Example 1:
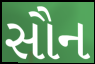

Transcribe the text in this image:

સૌન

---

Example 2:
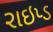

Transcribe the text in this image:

રાઇપ્ડ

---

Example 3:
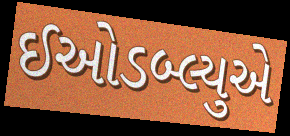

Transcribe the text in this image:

ઈઓડબ્લ્યુએ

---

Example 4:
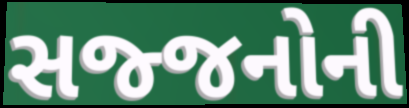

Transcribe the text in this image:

સજ્જનોની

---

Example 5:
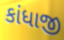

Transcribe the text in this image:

કાંધાજી